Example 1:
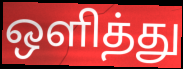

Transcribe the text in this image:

ஒளித்து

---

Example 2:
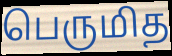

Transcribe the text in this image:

பெருமித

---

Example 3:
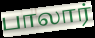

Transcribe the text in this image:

பாலார்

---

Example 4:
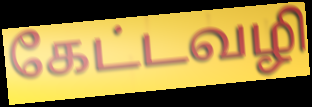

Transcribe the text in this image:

கேட்டவழி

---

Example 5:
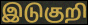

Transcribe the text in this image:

இடுகுறி